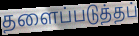
தளைப்படுத்தப்